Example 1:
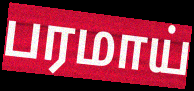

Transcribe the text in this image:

பரமாய்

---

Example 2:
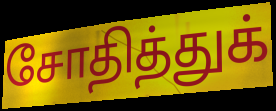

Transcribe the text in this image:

சோதித்துக்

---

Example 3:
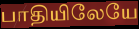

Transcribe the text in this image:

பாதியிலேயே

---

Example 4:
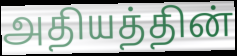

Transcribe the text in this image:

அதியத்தின்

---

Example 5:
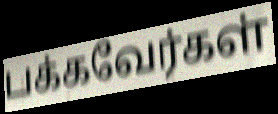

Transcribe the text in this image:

பக்கவேர்கள்